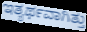
ಇತ್ಯರ್ಥವಾಗಿತ್ತು